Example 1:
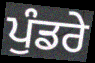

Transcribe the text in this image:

ਪੁੰਡਰੇ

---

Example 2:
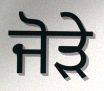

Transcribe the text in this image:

ਜੋਡ਼ੇ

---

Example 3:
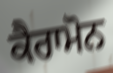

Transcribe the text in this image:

ਕੈਰਾਮੋਨ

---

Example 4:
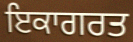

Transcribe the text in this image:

ਇਕਾਗਰਤ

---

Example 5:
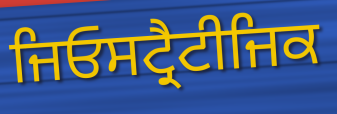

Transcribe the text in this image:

ਜਿਓਸਟ੍ਰੈਟੀਜਿਕ